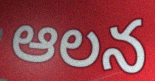
ఆలన